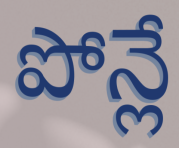
పోన్లే